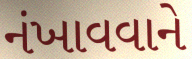
નંખાવવાને